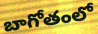
బాగోతంలో